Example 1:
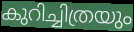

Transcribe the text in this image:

കുറിച്ചിത്രയും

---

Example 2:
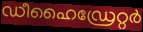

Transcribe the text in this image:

ഡീഹൈഡ്രേറ്റർ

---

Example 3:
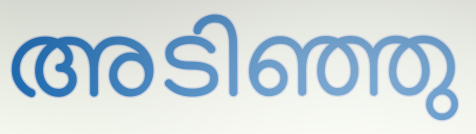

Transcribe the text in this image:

അടിഞ്ഞു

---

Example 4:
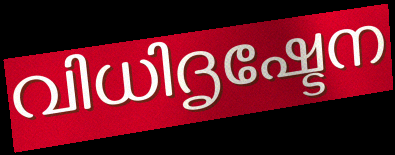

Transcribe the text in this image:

വിധിദൃഷ്ടേന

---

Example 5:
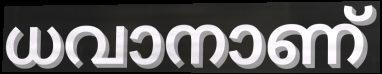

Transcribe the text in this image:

ധവാനാണ്